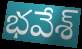
భవేశ్